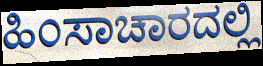
ಹಿಂಸಾಚಾರದಲ್ಲಿ